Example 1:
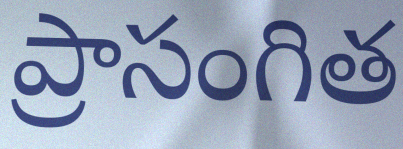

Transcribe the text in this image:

ప్రాసంగిత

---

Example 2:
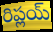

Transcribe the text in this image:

రిప్లయ్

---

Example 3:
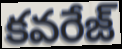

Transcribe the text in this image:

కవరేజ్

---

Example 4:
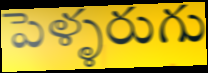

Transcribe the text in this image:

పెళ్ళరుగు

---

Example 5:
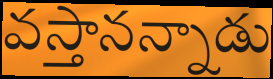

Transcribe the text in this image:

వస్తానన్నాడు